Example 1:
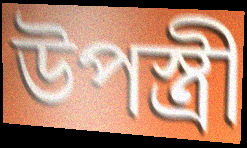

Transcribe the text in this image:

উপস্ত্রী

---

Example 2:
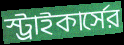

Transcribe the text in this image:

স্ট্রাইকার্সের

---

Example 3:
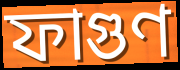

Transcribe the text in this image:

ফাগুণ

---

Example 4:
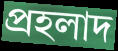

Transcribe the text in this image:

প্রহলাদ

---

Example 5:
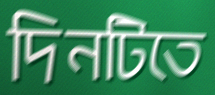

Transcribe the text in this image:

দিনটিতে